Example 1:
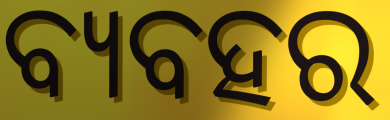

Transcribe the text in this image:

ବ୍ୟବହର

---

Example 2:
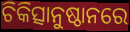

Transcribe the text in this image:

ଚିକିତ୍ସାନୁଷ୍ଠାନରେ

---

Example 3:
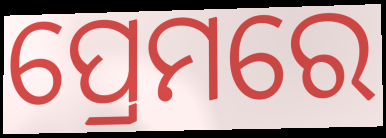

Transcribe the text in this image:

ପ୍ରେମରେ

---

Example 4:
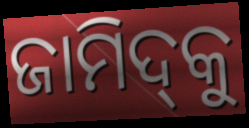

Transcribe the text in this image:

ଜାମିଦ୍‌କୁ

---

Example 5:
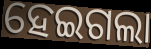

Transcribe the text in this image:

ହେଇଗଲା